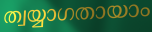
ത്വയ്യാഗതായാം